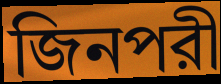
জিনপরী